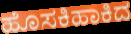
ಹೊಸಕಿಹಾಕಿದ